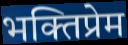
भक्तिप्रेम